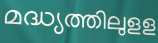
മദ്ധ്യത്തിലുളള